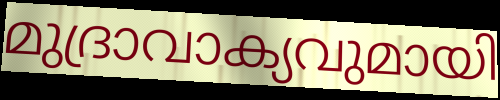
മുദ്രാവാക്യവുമായി